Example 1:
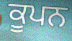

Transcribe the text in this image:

ਕੂਪਨ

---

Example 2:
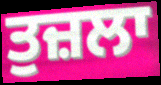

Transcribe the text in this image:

ਤੁਜ਼ਲਾ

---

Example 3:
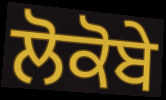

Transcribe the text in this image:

ਲੋਕੋਬੇ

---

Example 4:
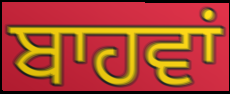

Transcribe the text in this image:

ਬਾਹਵਾਂ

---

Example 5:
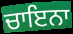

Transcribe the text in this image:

ਚਾਇਨਾ